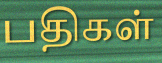
பதிகள்